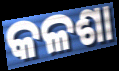
କଳଶା